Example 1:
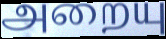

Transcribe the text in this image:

அறையு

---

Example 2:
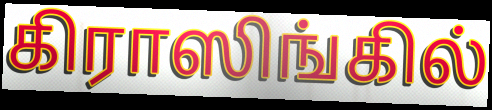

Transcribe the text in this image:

கிராஸிங்கில்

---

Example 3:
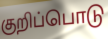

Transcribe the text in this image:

குறிப்பொடு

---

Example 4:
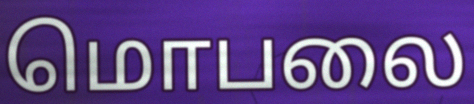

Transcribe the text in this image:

மொபலை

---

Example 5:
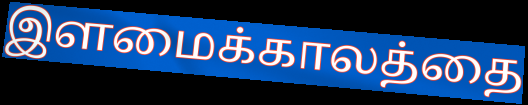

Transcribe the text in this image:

இளமைக்காலத்தை